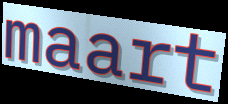
maart